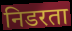
निडरता